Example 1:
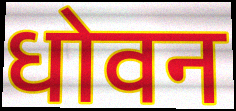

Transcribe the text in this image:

धोवन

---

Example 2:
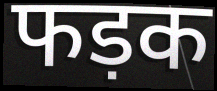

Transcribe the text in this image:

फड़क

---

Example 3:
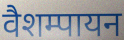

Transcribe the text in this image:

वैशम्पायन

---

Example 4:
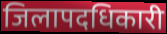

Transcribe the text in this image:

जिलापदधिकारी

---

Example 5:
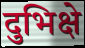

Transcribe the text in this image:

दुभिक्षे